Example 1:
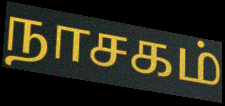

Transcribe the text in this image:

நாசகம்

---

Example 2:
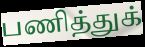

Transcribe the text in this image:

பணித்துக்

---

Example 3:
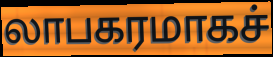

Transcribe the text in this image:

லாபகரமாகச்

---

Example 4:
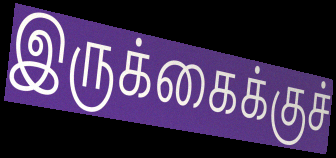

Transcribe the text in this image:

இருக்கைக்குச்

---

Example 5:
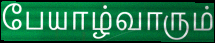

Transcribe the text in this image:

பேயாழ்வாரும்